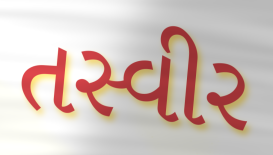
તસ્વીર